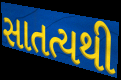
સાતત્યથી